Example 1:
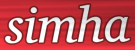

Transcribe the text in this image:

simha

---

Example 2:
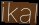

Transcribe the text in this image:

ikal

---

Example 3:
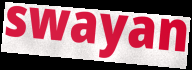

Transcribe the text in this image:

swayan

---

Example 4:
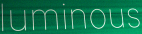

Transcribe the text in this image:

luminous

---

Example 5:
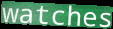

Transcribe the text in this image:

watches